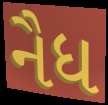
નૈધ